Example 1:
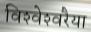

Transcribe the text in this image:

विश्वेश्वरैया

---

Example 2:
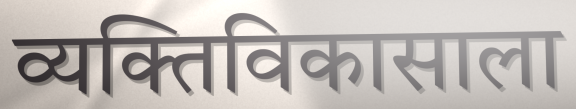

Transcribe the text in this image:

व्यक्तिविकासाला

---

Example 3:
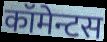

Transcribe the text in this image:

कॉमेन्टस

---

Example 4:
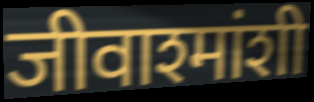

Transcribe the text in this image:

जीवाश्मांशी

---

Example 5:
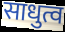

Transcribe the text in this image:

साधुत्व